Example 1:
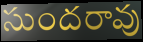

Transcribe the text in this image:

సుందరావు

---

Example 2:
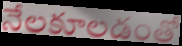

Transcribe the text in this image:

నేలకూలడంతో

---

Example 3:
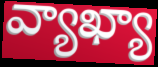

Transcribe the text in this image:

వ్యాఖ్యా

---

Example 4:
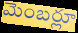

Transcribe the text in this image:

మెంబర్లూ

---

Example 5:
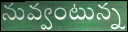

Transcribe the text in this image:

నువ్వంటున్న